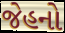
જેહનો